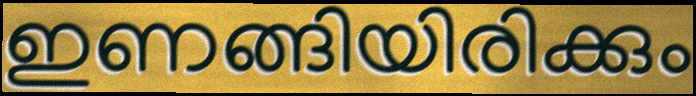
ഇണങ്ങിയിരിക്കും